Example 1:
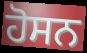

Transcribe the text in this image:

ਹੋਸਨ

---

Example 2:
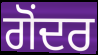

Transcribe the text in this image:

ਗੋਂਦਰ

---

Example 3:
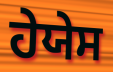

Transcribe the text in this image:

ਹੇਯੇਸ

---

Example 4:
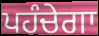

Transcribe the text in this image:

ਪਹੰਚੇਗਾ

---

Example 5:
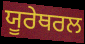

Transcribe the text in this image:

ਯੂਰੇਥਰਲ